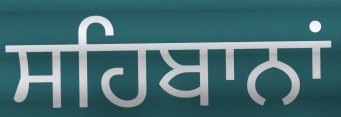
ਸਹਿਬਾਨਾਂ